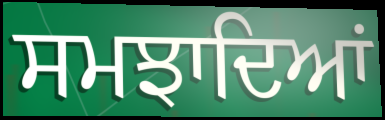
ਸਮਝਾਦਿਆਂ